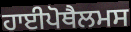
ਹਾਈਪੋਥੈਲਮਸ